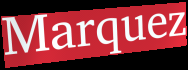
Marquez